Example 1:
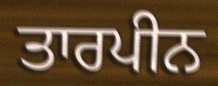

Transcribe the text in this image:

ਤਾਰਪੀਨ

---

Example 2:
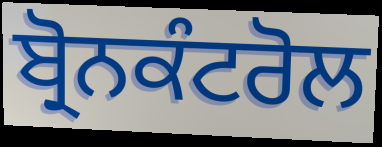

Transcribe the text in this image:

ਬ੍ਰੋਨਕੰਟਰੋਲ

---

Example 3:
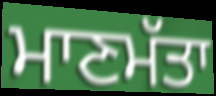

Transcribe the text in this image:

ਮਾਣਮੱਤਾ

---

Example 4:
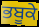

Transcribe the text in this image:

ਭਬੂਕੇ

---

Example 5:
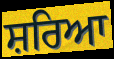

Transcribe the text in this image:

ਸ਼ਰਿਆ